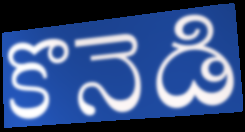
కొనెడి